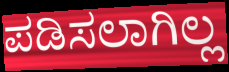
ಪಡಿಸಲಾಗಿಲ್ಲ